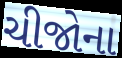
ચીજોના